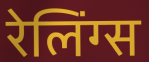
रेलिंग्स